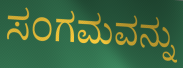
ಸಂಗಮವನ್ನು